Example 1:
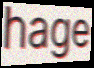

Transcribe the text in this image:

hage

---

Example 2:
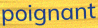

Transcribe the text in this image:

poignant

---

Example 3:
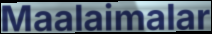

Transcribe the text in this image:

Maalaimalar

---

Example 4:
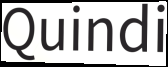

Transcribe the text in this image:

Quindi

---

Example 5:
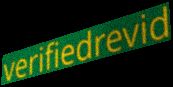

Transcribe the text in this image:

verifiedrevid